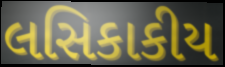
લસિકાકીય